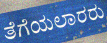
ತೆಗೆಯಲಾರರು